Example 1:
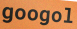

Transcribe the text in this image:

googol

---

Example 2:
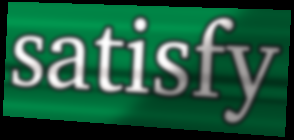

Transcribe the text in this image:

satisfy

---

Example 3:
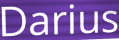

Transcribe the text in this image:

Darius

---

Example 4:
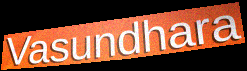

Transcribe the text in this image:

Vasundhara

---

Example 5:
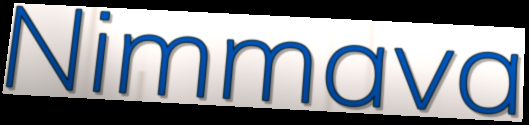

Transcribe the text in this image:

Nimmava